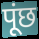
पूंछ